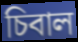
চিবাল